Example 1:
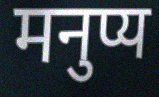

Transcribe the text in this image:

मनुप्य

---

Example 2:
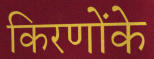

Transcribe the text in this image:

किरणोंके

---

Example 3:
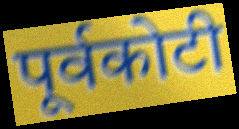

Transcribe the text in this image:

पूर्वकोटी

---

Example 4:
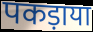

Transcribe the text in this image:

पकड़ाया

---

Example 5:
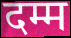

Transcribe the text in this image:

दम्म